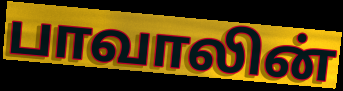
பாவாலின்